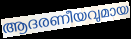
ആദരണീയവുമായ